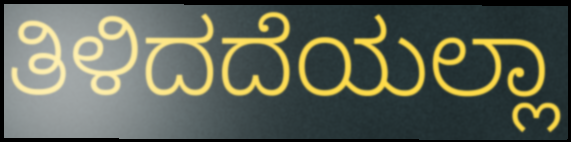
ತಿಳಿದದೆಯಲ್ಲಾ